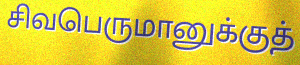
சிவபெருமானுக்குத்